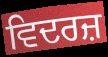
ਵਿਦਰਜ਼